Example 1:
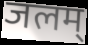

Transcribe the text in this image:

जलम्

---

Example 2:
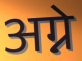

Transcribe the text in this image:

अग्ने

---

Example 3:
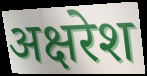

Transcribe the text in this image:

अक्षरेश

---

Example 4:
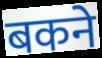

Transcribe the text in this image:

बकने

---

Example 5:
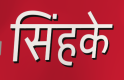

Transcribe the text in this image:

सिंहके